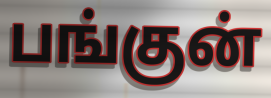
பங்குன்